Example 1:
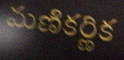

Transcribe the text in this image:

మణికర్ణిక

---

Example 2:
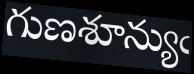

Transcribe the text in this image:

గుణశూన్యుఁ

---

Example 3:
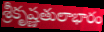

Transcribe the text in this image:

శ్రీకృష్ణతులాభారం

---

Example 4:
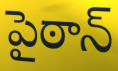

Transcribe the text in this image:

పైఠాన్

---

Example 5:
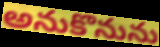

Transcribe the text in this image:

అనుకొనును